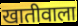
खातीवाला